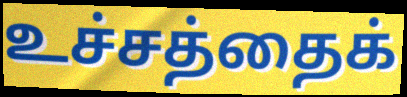
உச்சத்தைக்